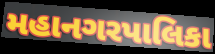
મહાનગરપાલિકા